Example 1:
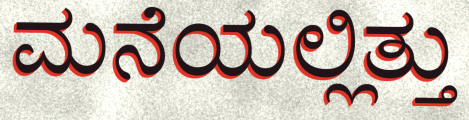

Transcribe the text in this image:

ಮನೆಯಲ್ಲಿತ್ತು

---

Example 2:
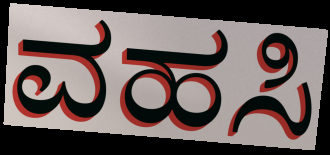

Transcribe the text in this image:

ವಹಸಿ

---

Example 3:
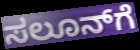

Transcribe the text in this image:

ಸಲೂನ್‍ಗೆ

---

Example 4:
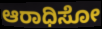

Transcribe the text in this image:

ಆರಾಧಿಸೋ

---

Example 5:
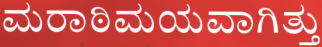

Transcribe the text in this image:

ಮರಾಠಿಮಯವಾಗಿತ್ತು